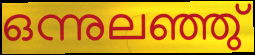
ഒന്നുലഞ്ഞു്